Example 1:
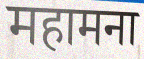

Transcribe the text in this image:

महामना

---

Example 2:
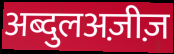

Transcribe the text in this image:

अब्दुलअज़ीज़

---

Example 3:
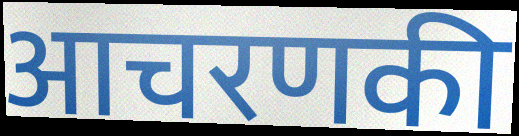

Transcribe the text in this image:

आचरणकी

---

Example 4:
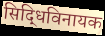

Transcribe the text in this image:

सिद्धिविनायक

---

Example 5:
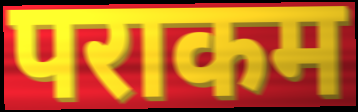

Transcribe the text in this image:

पराकम